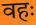
वहः